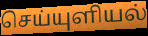
செய்யுளியல்